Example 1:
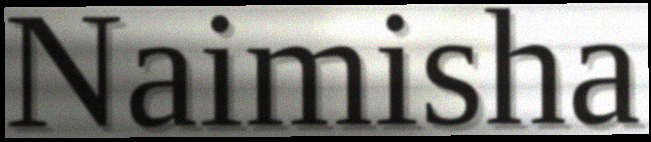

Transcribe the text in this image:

Naimisha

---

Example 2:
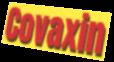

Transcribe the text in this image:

Covaxin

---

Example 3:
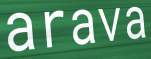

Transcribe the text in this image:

arava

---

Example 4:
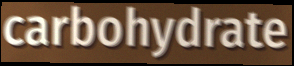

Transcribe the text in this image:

carbohydrate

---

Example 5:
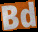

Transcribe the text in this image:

Bd